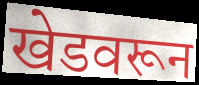
खेडवरून